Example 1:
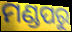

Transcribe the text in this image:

ମଣ୍ଡପରୁ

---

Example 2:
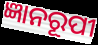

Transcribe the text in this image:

ଜ୍ଞାନରୂପୀ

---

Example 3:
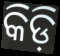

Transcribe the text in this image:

କିଡ଼ି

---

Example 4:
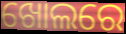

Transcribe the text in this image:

ଖୋଲରେ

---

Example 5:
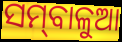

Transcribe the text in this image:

ସମ୍‌ବାଳୁଆ